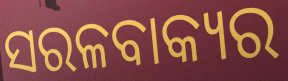
ସରଳବାକ୍ୟର